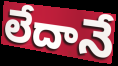
లేదానే